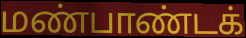
மண்பாண்டக்